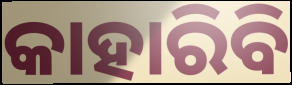
କାହାରିବି